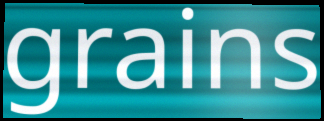
grains